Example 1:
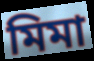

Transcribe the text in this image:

মিমা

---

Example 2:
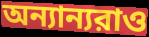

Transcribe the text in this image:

অন্যান্যরাও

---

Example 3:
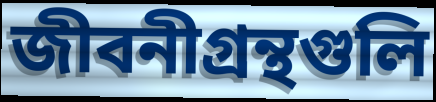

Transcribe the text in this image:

জীবনীগ্রন্থগুলি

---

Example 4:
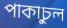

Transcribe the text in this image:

পাকাচুল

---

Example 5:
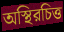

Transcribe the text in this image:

অস্থিরচিত্ত